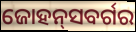
ଜୋହନ୍‌ସବର୍ଗର